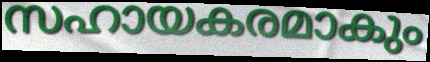
സഹായകരമാകും